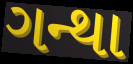
ગન્થા